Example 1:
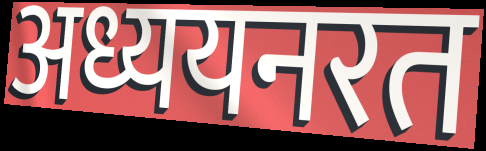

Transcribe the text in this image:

अध्ययनरत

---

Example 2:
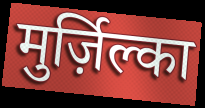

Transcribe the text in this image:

मुर्ज़िल्का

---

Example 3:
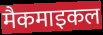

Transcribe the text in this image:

मैकमाइकल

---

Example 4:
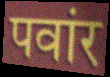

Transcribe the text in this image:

पवांर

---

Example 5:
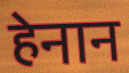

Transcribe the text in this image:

हेनान